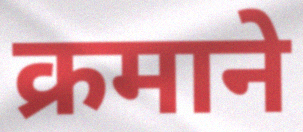
क्रमाने